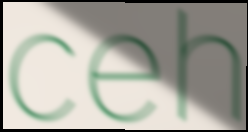
ceh